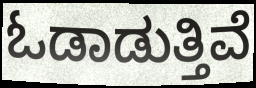
ಓಡಾಡುತ್ತಿವೆ